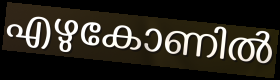
എഴുകോണിൽ